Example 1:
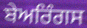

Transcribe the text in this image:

ਬੇਅਰਿੰਗਸ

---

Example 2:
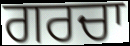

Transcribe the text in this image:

ਗਰਚਾ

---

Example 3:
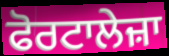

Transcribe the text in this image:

ਫੋਰਟਾਲੇਜ਼ਾ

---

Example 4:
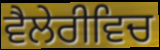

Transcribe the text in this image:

ਵੈਲੇਰੀਵਿਚ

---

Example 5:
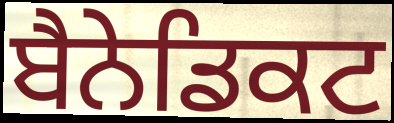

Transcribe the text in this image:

ਬੈਨੇਡਿਕਟ